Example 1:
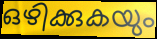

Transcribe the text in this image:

ഒഴിക്കുകയും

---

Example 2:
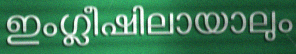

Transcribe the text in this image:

ഇംഗ്ലീഷിലായാലും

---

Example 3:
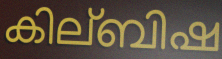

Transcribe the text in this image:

കില്ബിഷ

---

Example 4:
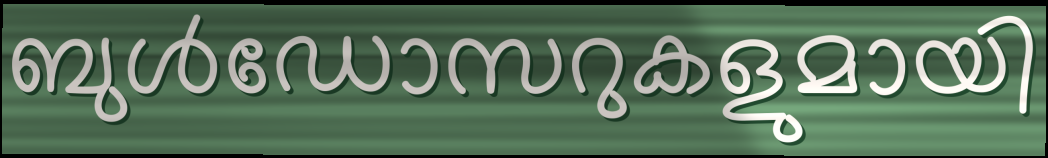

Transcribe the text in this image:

ബുൾഡോസറുകളുമായി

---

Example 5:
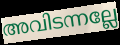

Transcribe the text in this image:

അവിടന്നല്ലേ